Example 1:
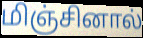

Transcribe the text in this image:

மிஞ்சினால்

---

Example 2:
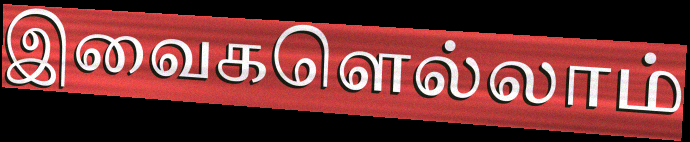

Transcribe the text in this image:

இவைகளெல்லாம்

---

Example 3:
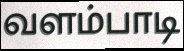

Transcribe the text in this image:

வளம்பாடி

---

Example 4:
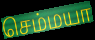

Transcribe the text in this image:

செம்மயா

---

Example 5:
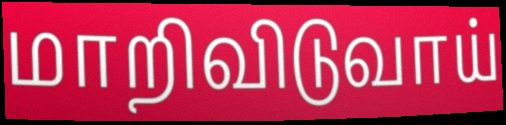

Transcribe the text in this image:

மாறிவிடுவாய்